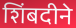
शिंबदीने